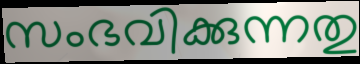
സംഭവിക്കുന്നതു